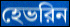
হেভরিন